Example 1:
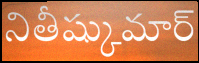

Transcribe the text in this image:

నితీష్కుమార్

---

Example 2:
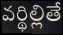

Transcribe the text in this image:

వర్థిల్లితే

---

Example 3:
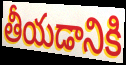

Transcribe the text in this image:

తీయడానికి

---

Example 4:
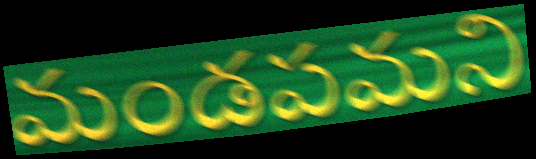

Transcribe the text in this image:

మండపమని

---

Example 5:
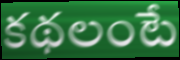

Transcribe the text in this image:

కథలంటే